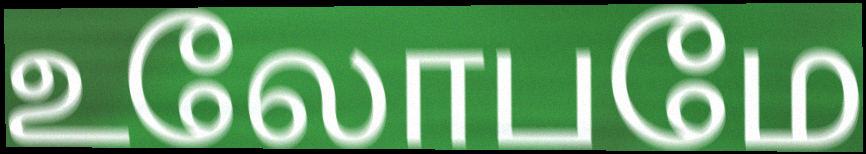
உலோபமே